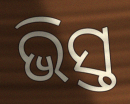
ଭିସ୍ତ